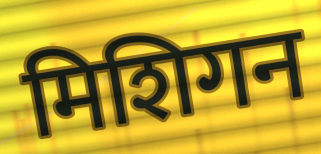
मिशिगन